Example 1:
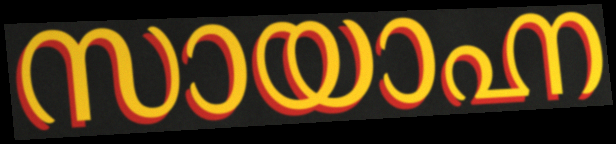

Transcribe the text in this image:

സായാഹ്ന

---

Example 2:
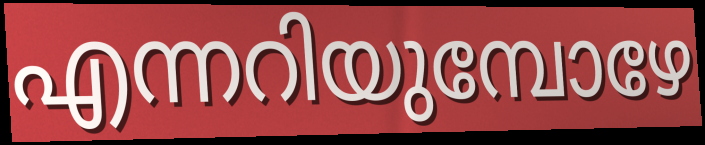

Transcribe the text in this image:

എന്നറിയുമ്പോഴേ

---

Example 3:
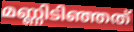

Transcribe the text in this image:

മണ്ണിടിഞ്ഞത്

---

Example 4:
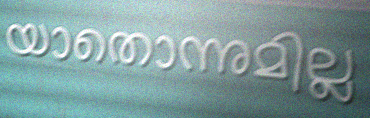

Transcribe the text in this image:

യാതൊന്നുമില്ല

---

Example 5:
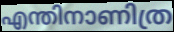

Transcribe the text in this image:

എന്തിനാണിത്ര